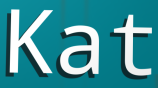
Kat